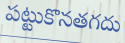
పట్టుకొనతగదు